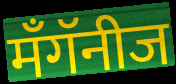
मँगॅनीज